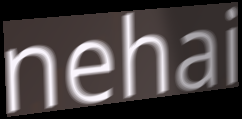
nehai